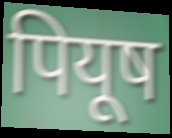
पियूष